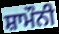
ਸ਼ਾਮੌਨੀ